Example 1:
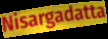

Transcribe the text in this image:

Nisargadatta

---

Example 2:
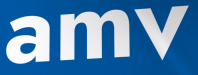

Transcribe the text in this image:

amv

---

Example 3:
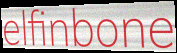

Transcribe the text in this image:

elfinbone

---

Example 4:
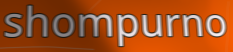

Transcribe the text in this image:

shompurno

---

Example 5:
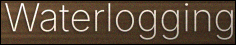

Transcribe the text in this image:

Waterlogging